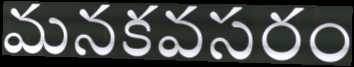
మనకవసరం